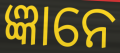
ଜ୍ଞାନେ